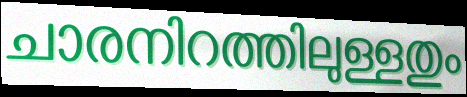
ചാരനിറത്തിലുള്ളതും